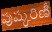
పుష్కరిణీ